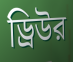
ড্রিউর